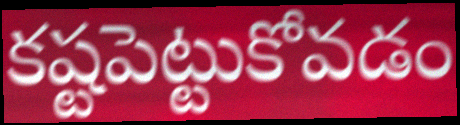
కష్టపెట్టుకోవడం